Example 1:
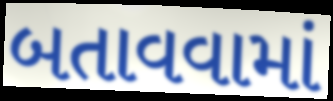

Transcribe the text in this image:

બતાવવામાં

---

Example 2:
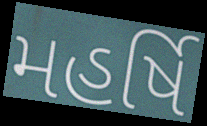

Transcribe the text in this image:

મહર્ષિ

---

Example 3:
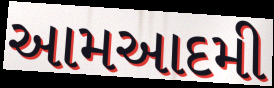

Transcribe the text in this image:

આમઆદમી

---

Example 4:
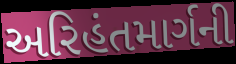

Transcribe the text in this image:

અરિહંતમાર્ગની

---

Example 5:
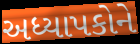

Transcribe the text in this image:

અધ્યાપકોને